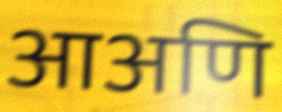
आअणि